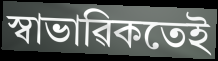
স্বাভাৱিকতেই